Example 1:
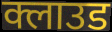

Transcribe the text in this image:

क्‍लाउड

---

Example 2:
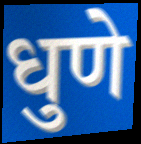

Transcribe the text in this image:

धुणे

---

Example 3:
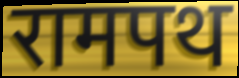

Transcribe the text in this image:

रामपथ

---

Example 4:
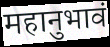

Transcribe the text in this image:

महानुभावं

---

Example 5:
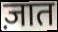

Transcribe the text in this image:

ज़ात